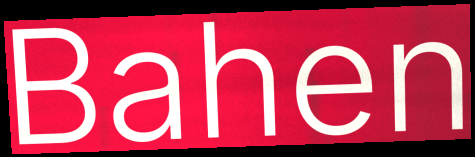
Bahen